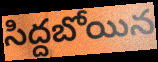
సిద్దబోయిన